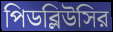
পিডব্লিউসির